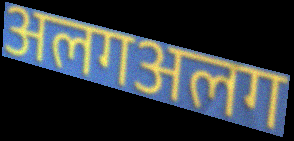
अलगअलग